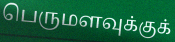
பெருமளவுக்குக்